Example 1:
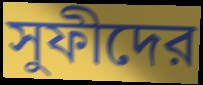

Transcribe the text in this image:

সুফীদের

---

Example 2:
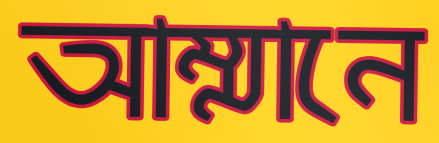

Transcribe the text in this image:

আম্মানে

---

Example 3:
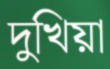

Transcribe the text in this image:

দুখিয়া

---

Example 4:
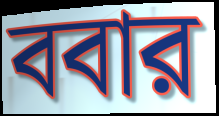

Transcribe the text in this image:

ববার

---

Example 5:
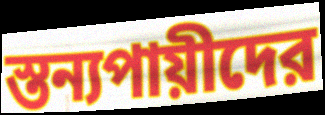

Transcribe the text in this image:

স্তন্যপায়ীদের